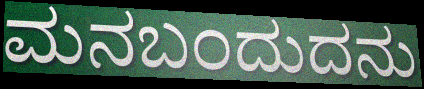
ಮನಬಂದುದನು